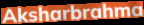
Aksharbrahma